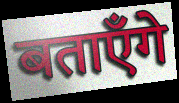
बताएँगे